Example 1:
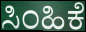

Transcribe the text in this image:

ಸಿಂಹಿಕೆ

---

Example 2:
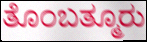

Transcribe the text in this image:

ತೊಂಬತ್ಮೂರು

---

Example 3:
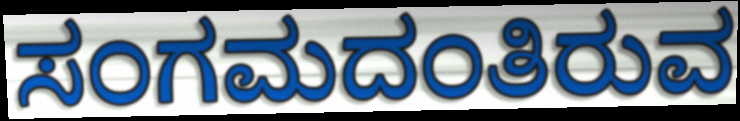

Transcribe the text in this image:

ಸಂಗಮದಂತಿರುವ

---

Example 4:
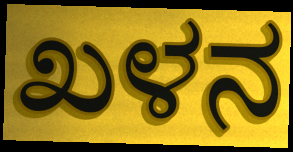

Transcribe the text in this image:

ಖಳನ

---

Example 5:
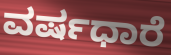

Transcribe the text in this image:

ವರ್ಷಧಾರೆ